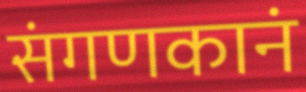
संगणकानं